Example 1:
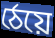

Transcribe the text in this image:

ঠেয়ে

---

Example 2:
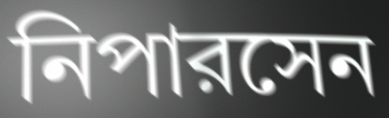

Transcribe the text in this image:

নিপারসেন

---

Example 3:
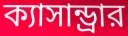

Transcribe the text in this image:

ক্যাসান্ড্রার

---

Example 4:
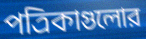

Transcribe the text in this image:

পত্রিকাগুলোর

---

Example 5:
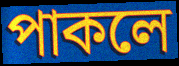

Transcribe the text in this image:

পাকলে